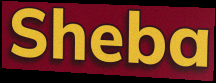
Sheba